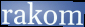
rakom